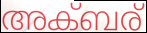
അക്ബര്